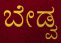
ಬೇಡ್ವ